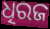
ଧିରଜ